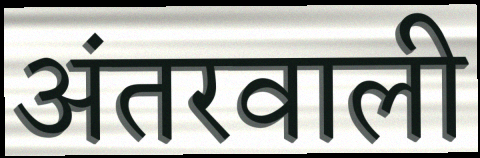
अंतरवाली